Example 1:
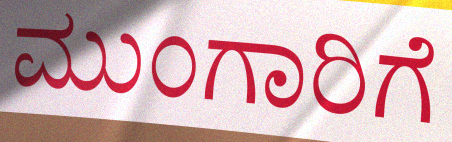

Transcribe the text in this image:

ಮುಂಗಾರಿಗೆ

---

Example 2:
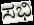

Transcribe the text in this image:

ಸಭಿ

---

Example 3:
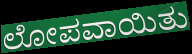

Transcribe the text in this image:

ಲೋಪವಾಯಿತು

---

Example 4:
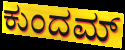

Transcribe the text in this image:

ಕುಂದಮ್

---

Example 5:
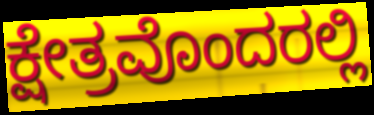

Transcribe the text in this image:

ಕ್ಷೇತ್ರವೊಂದರಲ್ಲಿ